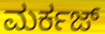
ಮರ್ಕಜ್